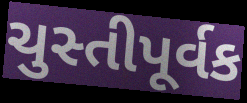
ચુસ્તીપૂર્વક